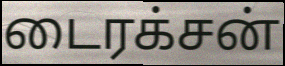
டைரக்சன்